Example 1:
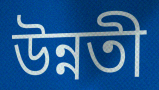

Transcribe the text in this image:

উন্নতী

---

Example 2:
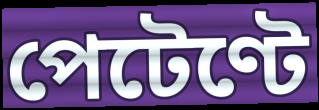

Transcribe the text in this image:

পেটেণ্টে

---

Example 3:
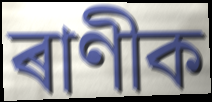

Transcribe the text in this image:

ৰাণীক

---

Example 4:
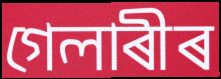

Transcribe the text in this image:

গেলাৰীৰ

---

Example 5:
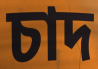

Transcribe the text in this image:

চাদ